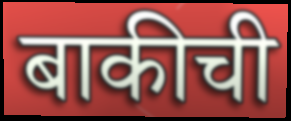
बाकीची